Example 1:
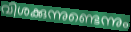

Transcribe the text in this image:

വിശക്കുന്നുണ്ടെന്നും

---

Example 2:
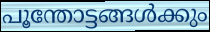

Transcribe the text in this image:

പൂന്തോട്ടങ്ങൾക്കും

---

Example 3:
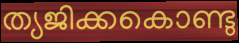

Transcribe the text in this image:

ത്യജിക്കകൊണ്ടു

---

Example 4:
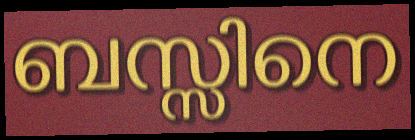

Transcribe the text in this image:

ബസ്സിനെ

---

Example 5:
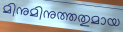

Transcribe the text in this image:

മിനുമിനുത്തതുമായ